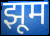
झूम